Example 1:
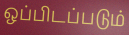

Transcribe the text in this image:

ஒப்பிடப்படும்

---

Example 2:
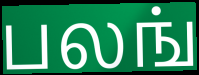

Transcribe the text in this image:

பலங்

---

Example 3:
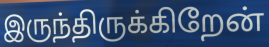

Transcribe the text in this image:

இருந்திருக்கிறேன்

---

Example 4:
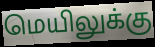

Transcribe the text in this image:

மெயிலுக்கு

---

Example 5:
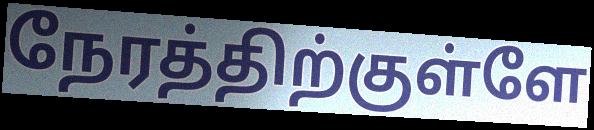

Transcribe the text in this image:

நேரத்திற்குள்ளே